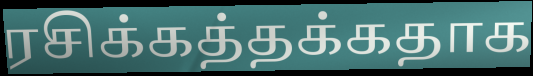
ரசிக்கத்தக்கதாக